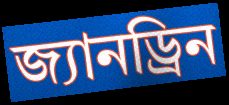
জ্যানড্রিন